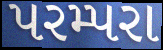
પરમ્પરા